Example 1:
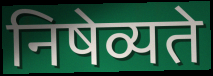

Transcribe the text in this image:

निषेव्यते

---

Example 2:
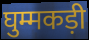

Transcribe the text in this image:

घुम्मकड़ी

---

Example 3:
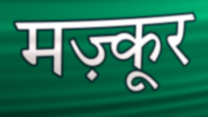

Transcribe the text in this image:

मज़्कूर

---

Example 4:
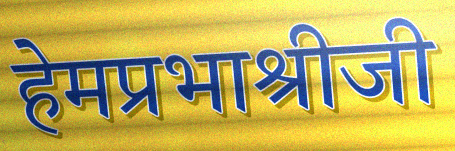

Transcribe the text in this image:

हेमप्रभाश्रीजी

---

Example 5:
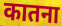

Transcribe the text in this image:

कातना